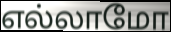
எல்லாமோ